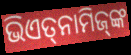
ଭିଏତ୍‌ନାମିଜ୍‌ଙ୍କ